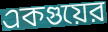
একগুয়ের